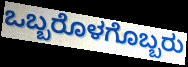
ಒಬ್ಬರೊಳಗೊಬ್ಬರು